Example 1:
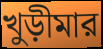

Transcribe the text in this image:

খুড়ীমার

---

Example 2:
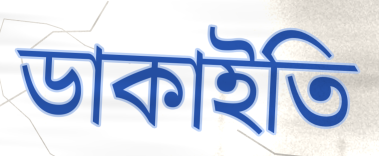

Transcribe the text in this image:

ডাকাইতি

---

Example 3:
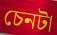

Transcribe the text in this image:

চেনটা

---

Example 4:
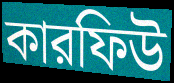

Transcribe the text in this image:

কারফিউ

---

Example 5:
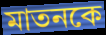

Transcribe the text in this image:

মাতনকে